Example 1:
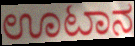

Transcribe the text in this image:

ಊಟಾನ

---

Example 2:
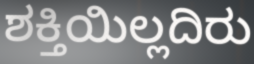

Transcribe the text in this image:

ಶಕ್ತಿಯಿಲ್ಲದಿರು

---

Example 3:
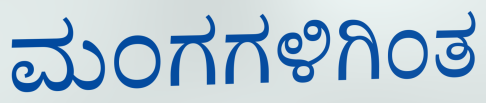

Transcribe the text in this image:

ಮಂಗಗಳಿಗಿಂತ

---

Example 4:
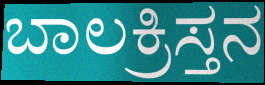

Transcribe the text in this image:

ಬಾಲಕ್ರಿಸ್ತನ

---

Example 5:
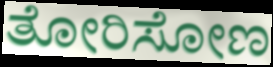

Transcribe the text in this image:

ತೋರಿಸೋಣ